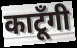
काटूँगी